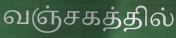
வஞ்சகத்தில்